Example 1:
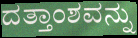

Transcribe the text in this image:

ದತ್ತಾಂಶವನ್ನು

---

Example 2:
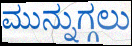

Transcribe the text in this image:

ಮುನ್ನುಗ್ಗಲು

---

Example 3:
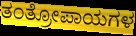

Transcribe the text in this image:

ತಂತ್ರೋಪಾಯಗಳ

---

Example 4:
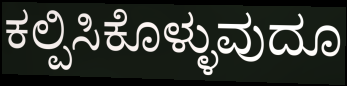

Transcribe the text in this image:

ಕಲ್ಪಿಸಿಕೊಳ್ಳುವುದೂ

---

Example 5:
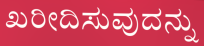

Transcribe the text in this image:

ಖರೀದಿಸುವುದನ್ನು